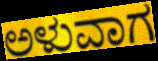
ಅಳುವಾಗ